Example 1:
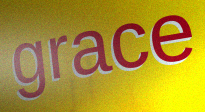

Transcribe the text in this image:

grace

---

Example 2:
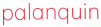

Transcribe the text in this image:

palanquin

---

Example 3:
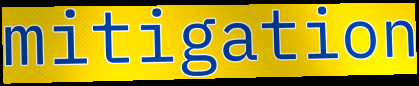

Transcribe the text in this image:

mitigation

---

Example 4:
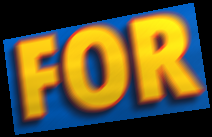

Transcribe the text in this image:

FOR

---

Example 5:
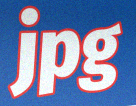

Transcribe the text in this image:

jpg